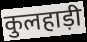
कुलहाड़ी